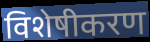
विशेषीकरण